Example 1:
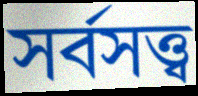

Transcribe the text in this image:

সর্বসত্ত্ব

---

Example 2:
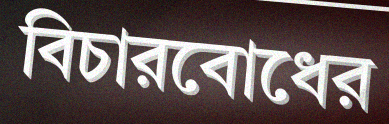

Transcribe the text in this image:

বিচারবোধের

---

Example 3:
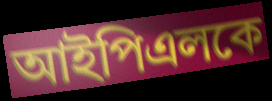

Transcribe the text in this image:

আইপিএলকে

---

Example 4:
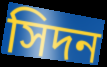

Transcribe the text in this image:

সিদন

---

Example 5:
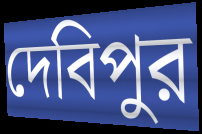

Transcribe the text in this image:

দেবিপুর